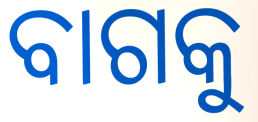
ବାଗକୁ